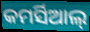
କମର୍ସିଆଲ୍